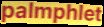
palmphlet